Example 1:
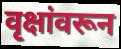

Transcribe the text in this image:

वृक्षांवरून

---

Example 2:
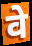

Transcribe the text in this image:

वे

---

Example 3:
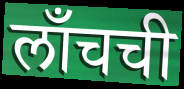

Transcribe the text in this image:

लाँचची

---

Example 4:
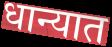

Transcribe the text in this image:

धान्यात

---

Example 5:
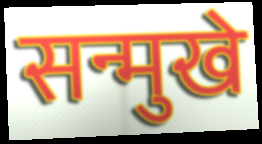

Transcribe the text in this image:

सन्मुखे